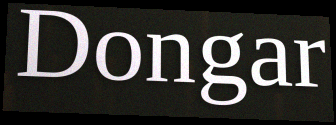
Dongar